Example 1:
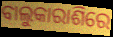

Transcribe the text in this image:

ବାଲୁକାରାଶିରେ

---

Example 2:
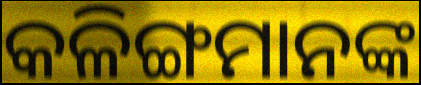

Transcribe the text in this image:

କଳିଙ୍ଗମାନଙ୍କ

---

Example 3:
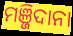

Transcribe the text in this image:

ମଞ୍ଜିଦାନା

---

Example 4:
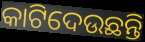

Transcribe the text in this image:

କାଟିଦେଉଛନ୍ତି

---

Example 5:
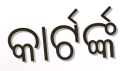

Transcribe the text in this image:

କାର୍ଟର୍ଙ୍କ